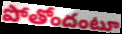
పోతోందంటూ